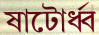
ষাটোর্ধ্ব